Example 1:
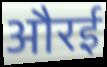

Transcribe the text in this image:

औरई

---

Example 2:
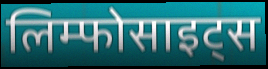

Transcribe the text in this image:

लिम्फोसाइट्स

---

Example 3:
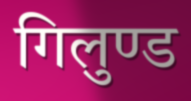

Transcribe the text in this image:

गिलुण्ड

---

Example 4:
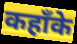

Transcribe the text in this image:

कहाँके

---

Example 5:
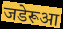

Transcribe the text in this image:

जडेरूआ